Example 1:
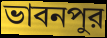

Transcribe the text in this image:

ভাবনপুর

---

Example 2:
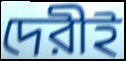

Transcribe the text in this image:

দেরীই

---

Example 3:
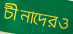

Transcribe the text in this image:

চীনাদেরও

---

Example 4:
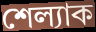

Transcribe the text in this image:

শেল্যাক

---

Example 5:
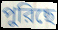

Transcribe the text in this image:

পুরিছে